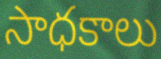
సాధకాలు